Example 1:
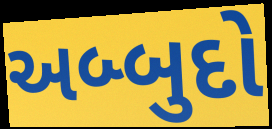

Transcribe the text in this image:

અબ્બુદો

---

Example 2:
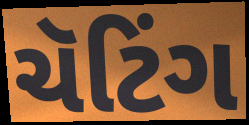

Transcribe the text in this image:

ચૅટિંગ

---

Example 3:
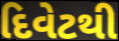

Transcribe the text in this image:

દિવેટથી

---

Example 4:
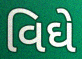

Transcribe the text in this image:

વિઘે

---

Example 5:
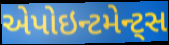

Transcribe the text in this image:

એપોઇન્ટમેન્ટ્સ